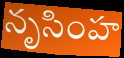
నృసింహ